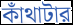
কাঁথাটার